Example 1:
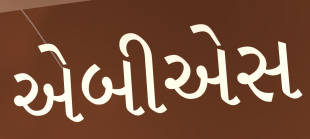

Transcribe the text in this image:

એબીએસ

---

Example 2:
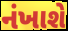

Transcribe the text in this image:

નંખાશે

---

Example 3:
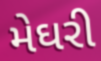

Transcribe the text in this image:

મેઘરી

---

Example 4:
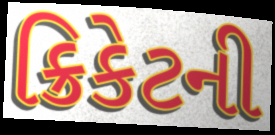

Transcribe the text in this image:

ક્રિકેટની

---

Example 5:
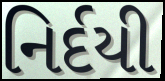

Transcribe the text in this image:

નિર્દયી